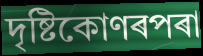
দৃষ্টিকোণৰপৰা